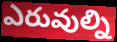
ఎరువుల్ని